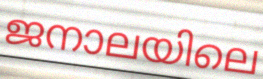
ജനാലയിലെ